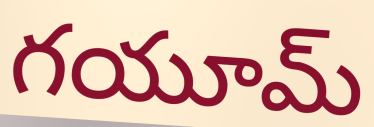
గయూమ్